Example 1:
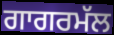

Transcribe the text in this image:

ਗਾਗਰਮੱਲ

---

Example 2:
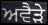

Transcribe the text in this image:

ਅਵੈੜੇ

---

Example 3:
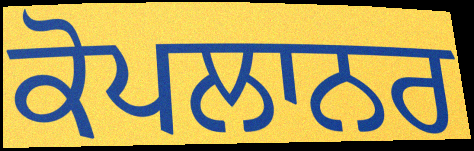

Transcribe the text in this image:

ਕੋਪਲਾਨਰ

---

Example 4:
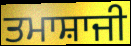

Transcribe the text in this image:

ਤਮਾਸ਼ਾਜੀ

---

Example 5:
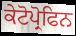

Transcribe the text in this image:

ਕੇਟੋਪ੍ਰੋਫਿਨ